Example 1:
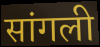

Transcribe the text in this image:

सांगली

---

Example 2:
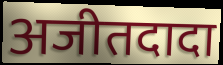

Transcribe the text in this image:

अजीतदादा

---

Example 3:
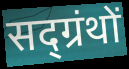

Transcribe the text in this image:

सद्ग्रंथों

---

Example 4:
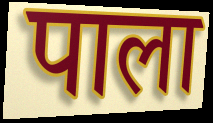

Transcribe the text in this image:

पाला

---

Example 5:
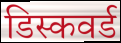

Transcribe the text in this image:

डिस्कवर्ड